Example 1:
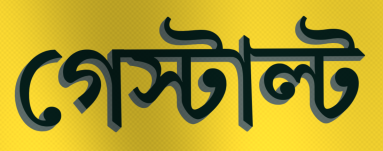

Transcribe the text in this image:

গেস্টাল্ট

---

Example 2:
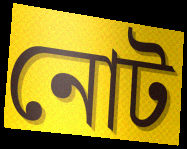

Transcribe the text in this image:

নোট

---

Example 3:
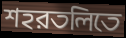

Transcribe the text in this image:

শহরতলিতে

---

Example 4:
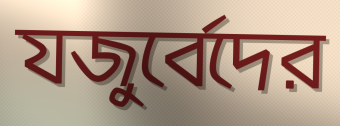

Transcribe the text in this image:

যজুর্বেদের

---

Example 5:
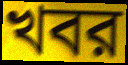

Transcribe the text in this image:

খবর